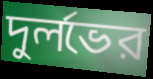
দুর্লভের